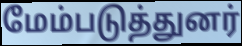
மேம்படுத்துனர்